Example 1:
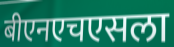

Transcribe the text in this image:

बीएनएचएसला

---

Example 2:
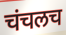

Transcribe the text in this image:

चंचलच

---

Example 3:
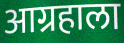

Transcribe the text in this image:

आग्रहाला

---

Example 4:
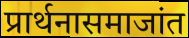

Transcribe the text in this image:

प्रार्थनासमाजांत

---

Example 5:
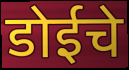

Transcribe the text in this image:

डोईचे